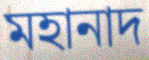
মহানাদ